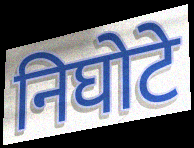
निघोटे